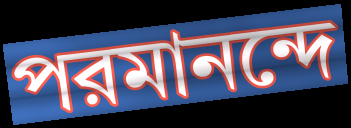
পরমানন্দে